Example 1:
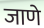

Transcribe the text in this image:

जाणे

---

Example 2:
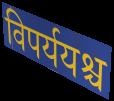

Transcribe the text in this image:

विपर्ययश्च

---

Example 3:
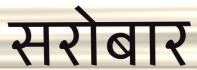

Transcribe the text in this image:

सरोबार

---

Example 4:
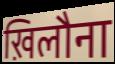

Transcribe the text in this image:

ख़िलौना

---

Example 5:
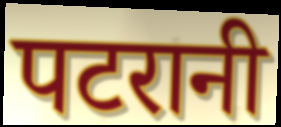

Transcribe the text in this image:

पटरानी